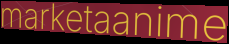
marketaanime